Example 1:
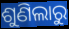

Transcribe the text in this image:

ଶୁଣିଲାରୁ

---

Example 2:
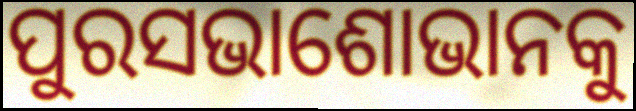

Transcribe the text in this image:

ପୁରସଭାଶୋଭାନକୁ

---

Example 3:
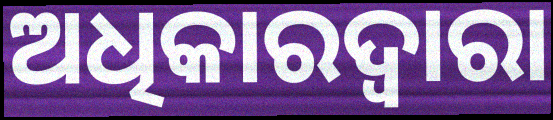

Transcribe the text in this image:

ଅଧିକାରଦ୍ୱାରା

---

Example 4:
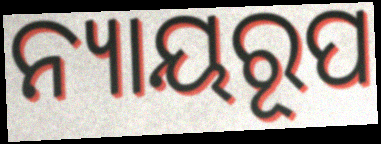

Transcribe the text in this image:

ନ୍ୟାୟରୂପ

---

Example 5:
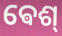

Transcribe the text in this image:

ଵେଶ୍